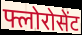
फ्लोरोसेंट